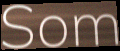
Som